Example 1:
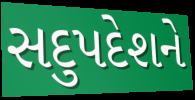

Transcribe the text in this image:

સદુપદેશને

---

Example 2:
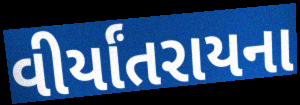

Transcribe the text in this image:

વીર્યાંતરાયના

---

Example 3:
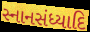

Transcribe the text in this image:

સ્નાનસંધ્યાદિ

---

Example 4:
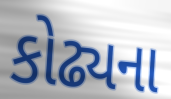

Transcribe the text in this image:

કોઢ્યના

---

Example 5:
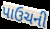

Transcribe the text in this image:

પાઉચની